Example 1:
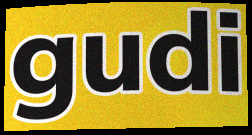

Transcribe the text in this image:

gudi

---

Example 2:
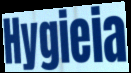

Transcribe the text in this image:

Hygieia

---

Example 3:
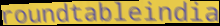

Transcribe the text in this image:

roundtableindia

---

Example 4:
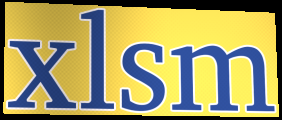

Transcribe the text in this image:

xlsm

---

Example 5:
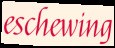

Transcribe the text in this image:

eschewing